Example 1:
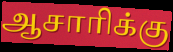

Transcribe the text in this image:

ஆசாரிக்கு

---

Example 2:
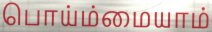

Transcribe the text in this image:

பொய்ம்மையாம்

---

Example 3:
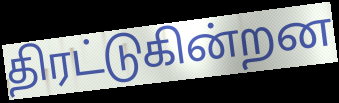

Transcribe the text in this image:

திரட்டுகின்றன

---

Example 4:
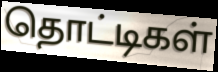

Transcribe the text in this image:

தொட்டிகள்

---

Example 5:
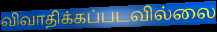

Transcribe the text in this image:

விவாதிக்கப்படவில்லை